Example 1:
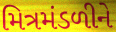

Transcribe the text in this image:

મિત્રમંડળીને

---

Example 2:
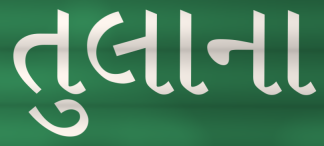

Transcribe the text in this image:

તુલાના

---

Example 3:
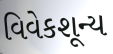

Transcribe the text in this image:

વિવેકશૂન્ય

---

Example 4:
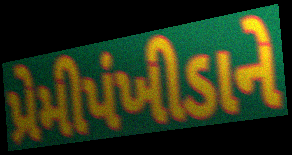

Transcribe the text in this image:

પ્રેમીપંખીડાને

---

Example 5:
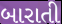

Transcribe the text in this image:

બારાતી